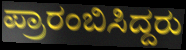
ಪ್ರಾರಂಬಿಸಿದ್ದರು